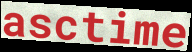
asctime